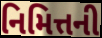
નિમિત્તની